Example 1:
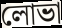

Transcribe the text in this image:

লোভা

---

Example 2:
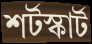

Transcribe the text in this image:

শর্টস্কার্ট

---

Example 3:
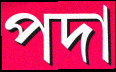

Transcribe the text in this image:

পদা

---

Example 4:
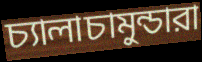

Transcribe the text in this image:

চ্যালাচামুন্ডারা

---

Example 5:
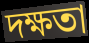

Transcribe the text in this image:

দক্ষতা